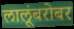
लालूंबरोबर